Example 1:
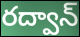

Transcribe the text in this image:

రద్వాన్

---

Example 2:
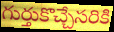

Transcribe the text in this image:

గుర్తుకొచ్చేసరికి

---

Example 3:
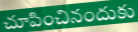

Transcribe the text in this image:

చూపించినందుకు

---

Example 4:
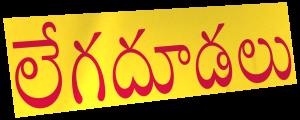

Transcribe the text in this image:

లేగదూడలు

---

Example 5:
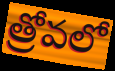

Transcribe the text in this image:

త్రోవలో